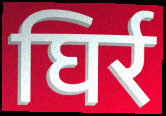
घिर्र